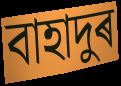
বাহাদুৰ